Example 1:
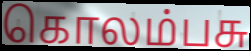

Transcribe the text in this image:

கொலம்பசு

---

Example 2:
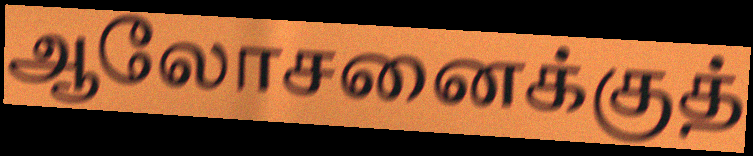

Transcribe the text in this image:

ஆலோசனைக்குத்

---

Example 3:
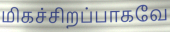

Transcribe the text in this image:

மிகச்சிறப்பாகவே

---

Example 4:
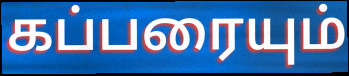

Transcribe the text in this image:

கப்பரையும்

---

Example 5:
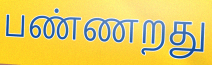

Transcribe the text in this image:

பண்ணறது